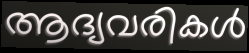
ആദ്യവരികൾ